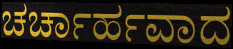
ಚರ್ಚಾರ್ಹವಾದ